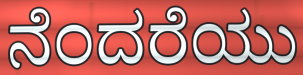
ನೆಂದರೆಯು